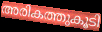
അരികത്തുകൂടി